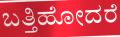
ಬತ್ತಿಹೋದರೆ